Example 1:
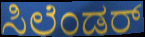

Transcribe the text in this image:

ಸಿಲೆಂಡರ್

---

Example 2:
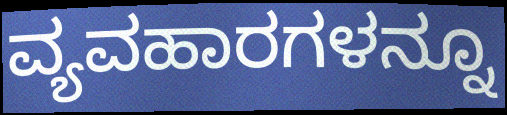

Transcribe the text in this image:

ವ್ಯವಹಾರಗಳನ್ನೂ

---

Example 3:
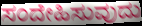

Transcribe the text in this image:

ಸಂದೇಹಿಸುವುದು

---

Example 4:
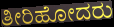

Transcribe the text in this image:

ತೀರಿಹೋದರು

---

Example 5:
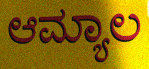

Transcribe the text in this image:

ಆಮ್ಯಾಲ